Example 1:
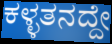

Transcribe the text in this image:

ಕಳ್ಳತನದ್ದೇ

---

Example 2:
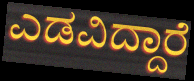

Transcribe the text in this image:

ಎಡವಿದ್ದಾರೆ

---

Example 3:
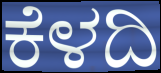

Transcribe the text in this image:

ಕೆಳದಿ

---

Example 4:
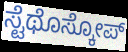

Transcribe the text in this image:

ಸ್ಟೆಥೊಸ್ಕೋಪ್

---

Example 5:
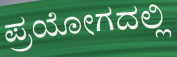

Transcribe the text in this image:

ಪ್ರಯೋಗದಲ್ಲಿ